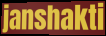
janshakti